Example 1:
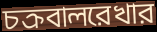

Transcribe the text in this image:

চক্রবালরেখার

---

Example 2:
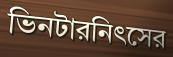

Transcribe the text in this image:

ভিনটারনিৎসের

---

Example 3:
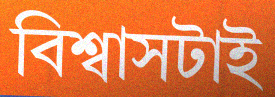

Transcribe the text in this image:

বিশ্বাসটাই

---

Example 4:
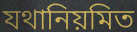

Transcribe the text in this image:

যথানিয়মিত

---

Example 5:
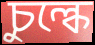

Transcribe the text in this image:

চুল্কে